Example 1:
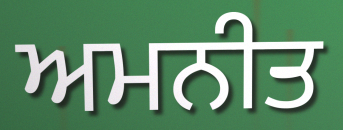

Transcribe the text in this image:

ਅਮਨੀਤ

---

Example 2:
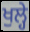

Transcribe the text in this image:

ਖੁਲ੍ਹੇ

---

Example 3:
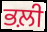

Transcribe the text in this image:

ਭਲ਼ੀ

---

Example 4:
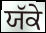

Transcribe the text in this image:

ਯੱਕੇ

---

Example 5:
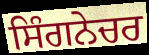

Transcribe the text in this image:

ਸਿੰਗਨੇਚਰ